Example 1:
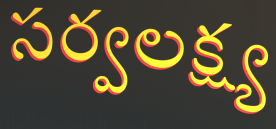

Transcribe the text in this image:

సర్వలక్ష్య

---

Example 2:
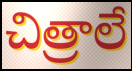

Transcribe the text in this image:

చిత్రాలే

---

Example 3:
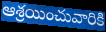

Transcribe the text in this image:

ఆశ్రయించువారికి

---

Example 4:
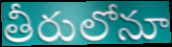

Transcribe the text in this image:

తీరులోనూ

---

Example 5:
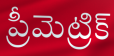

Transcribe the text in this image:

ప్రీమెట్రిక్